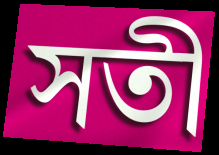
সতী